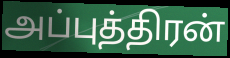
அப்புத்திரன்